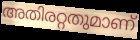
അതിരറ്റതുമാണ്